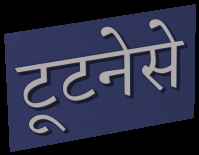
टूटनेसे